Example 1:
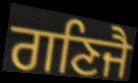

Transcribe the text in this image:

ਗਣਿਜੈ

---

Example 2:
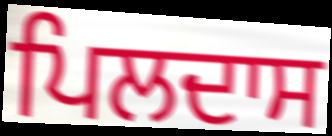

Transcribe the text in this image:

ਪਿਲਦਾਸ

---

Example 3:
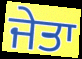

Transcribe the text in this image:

ਜੇਤਾ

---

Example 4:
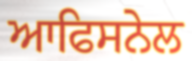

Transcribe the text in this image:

ਆਫਿਸਨੇਲ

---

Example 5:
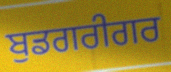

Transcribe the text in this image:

ਬੁਡਗਰੀਗਰ